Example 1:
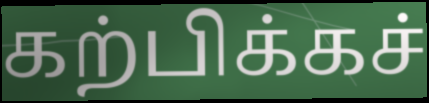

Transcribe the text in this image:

கற்பிக்கச்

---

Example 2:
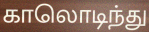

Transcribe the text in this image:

காலொடிந்து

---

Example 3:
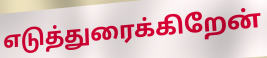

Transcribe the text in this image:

எடுத்துரைக்கிறேன்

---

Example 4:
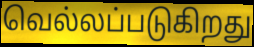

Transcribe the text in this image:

வெல்லப்படுகிறது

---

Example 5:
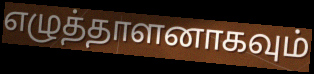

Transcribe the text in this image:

எழுத்தாளனாகவும்